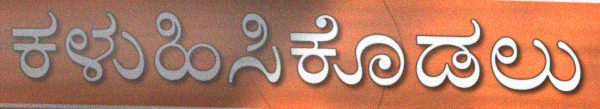
ಕಳುಹಿಸಿಕೊಡಲು